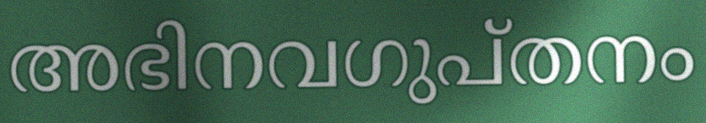
അഭിനവഗുപ്തനം